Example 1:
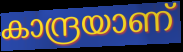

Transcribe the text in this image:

കാന്ദ്രയാണ്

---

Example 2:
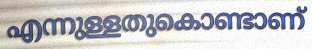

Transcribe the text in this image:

എന്നുള്ളതുകൊണ്ടാണ്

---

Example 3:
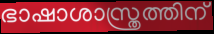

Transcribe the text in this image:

ഭാഷാശാസ്ത്രത്തിന്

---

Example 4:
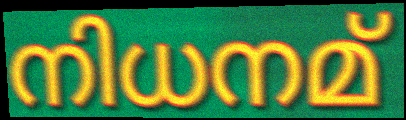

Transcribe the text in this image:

നിധനമ്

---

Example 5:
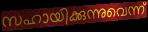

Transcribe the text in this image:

സഹായിക്കുന്നുവെന്ന്